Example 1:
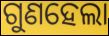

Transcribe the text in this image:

ଗୁଣହେଲା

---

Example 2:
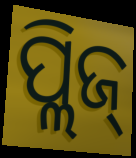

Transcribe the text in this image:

ପ୍ଲିଜ୍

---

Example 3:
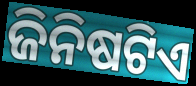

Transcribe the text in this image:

ଜିନିଷଟିଏ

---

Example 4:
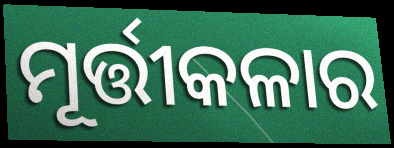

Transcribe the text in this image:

ମୂର୍ତ୍ତୀକଳାର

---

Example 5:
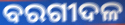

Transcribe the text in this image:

ବରଗୀଦଳ